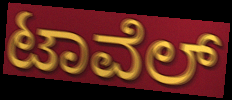
ಟಾವೆಲ್